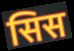
सिस